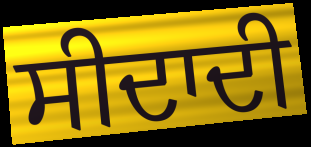
ਸੀਦਾਦੀ